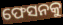
ଫେସନକୁ